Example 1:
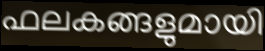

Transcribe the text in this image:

ഫലകങ്ങളുമായി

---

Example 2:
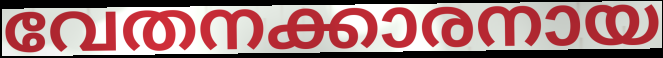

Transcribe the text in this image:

വേതനക്കാരനായ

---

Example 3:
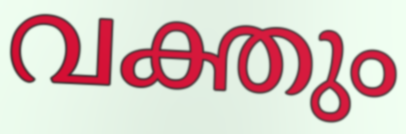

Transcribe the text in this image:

വക്തും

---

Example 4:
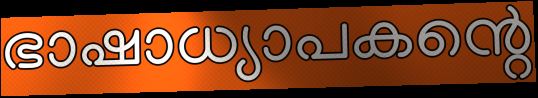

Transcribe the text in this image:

ഭാഷാധ്യാപകന്റെ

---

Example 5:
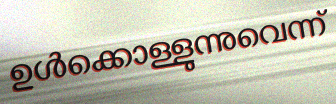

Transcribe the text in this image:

ഉൾക്കൊള്ളുന്നുവെന്ന്